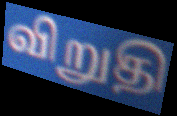
விறுதி